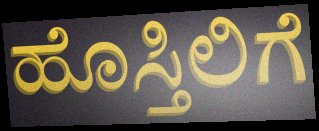
ಹೊಸ್ತಿಲಿಗೆ